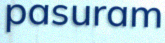
pasuram